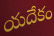
యదేకం